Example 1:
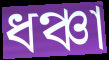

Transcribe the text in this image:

ধঞ্চা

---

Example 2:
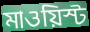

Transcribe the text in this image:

মাওয়িস্ট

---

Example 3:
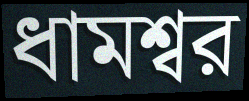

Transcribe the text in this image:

ধামশ্বর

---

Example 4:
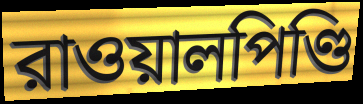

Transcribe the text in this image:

রাওয়ালপিণ্ডি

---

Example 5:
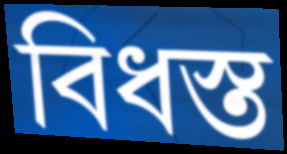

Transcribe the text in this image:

বিধস্ত